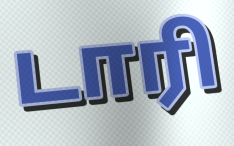
டாரி